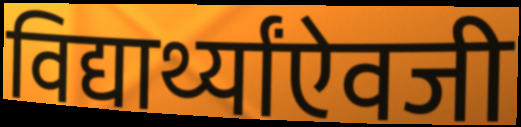
विद्यार्थ्यांऐवजी